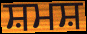
ਸ਼ਮਸ਼